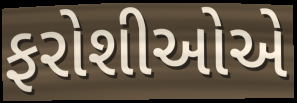
ફરોશીઓએ